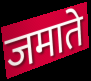
जमाते